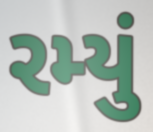
રમ્યું